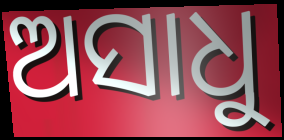
ଅସାଧୁ